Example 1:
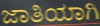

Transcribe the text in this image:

ಜಾತಿಯಾಗಿ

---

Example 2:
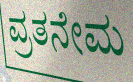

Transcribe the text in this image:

ವ್ರತನೇಮ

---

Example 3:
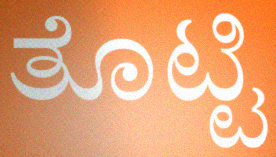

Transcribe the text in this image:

ತೊಟ್ಟಿ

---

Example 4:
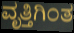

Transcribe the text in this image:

ವೃತ್ತಿಗಿಂತ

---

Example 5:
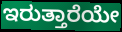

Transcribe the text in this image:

ಇರುತ್ತಾರೆಯೇ